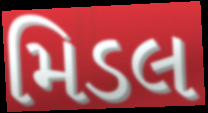
મિડલ